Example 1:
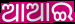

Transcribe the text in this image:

ଆଆଇ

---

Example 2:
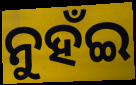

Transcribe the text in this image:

ନୁହଁଇ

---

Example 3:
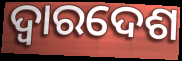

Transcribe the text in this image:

ଦ୍ୱାରଦେଶ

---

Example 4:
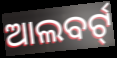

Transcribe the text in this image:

ଆଲବର୍ଟ୍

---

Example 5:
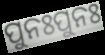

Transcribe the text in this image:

ପୁନଃପୁନଃ